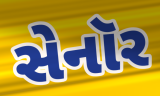
સેનૉર